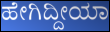
ಹೇಗಿದ್ದೀಯಾ